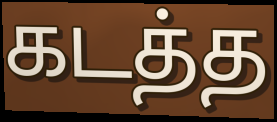
கடத்த